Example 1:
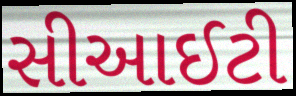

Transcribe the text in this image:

સીઆઈટી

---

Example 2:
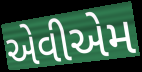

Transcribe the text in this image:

એવીએમ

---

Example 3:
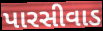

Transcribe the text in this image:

પારસીવાડ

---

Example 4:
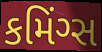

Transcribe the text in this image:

કમિંગ્સ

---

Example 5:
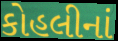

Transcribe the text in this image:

કોહલીનાં